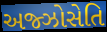
અજ્ઝોસેતિ